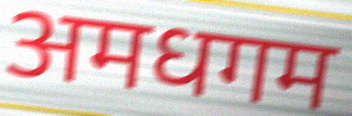
अमधगम